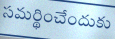
సమర్థించేందుకు